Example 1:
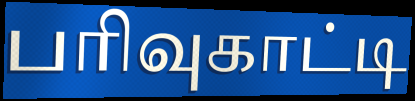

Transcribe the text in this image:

பரிவுகாட்டி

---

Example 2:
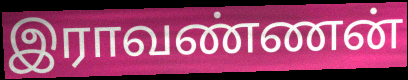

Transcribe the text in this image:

இராவண்ணன்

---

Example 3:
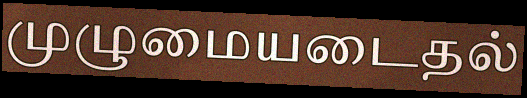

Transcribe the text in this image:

முழுமையடைதல்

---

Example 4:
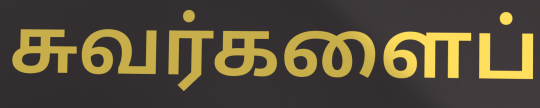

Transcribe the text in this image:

சுவர்களைப்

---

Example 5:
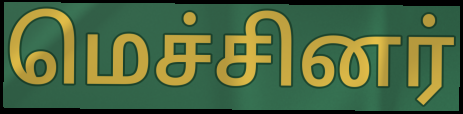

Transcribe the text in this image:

மெச்சினர்